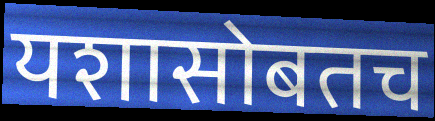
यशासोबतच